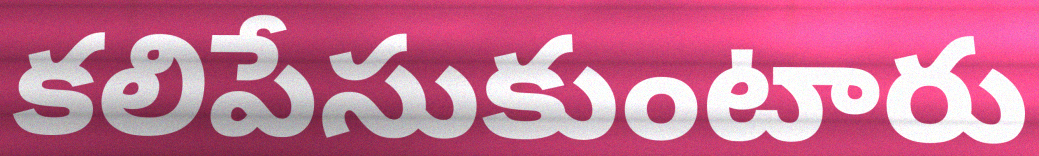
కలిపేసుకుంటారు